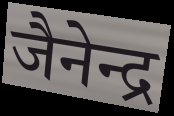
जैनेन्‍द्र